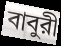
বাবুরী